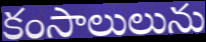
కంసాలులును